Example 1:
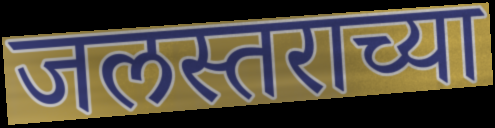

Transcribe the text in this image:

जलस्तराच्या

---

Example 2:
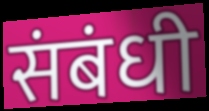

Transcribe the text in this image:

संबंधी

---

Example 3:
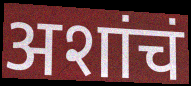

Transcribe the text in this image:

अशांचं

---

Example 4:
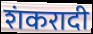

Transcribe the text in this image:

शंकरादी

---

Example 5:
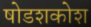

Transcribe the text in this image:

षोडशकोश